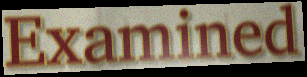
Examined